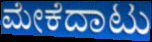
ಮೇಕೆದಾಟು